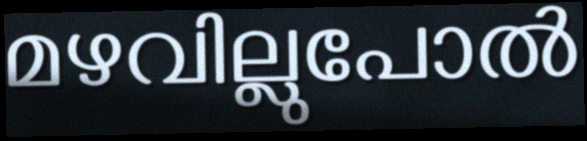
മഴവില്ലുപോൽ